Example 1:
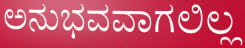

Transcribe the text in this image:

ಅನುಭವವಾಗಲಿಲ್ಲ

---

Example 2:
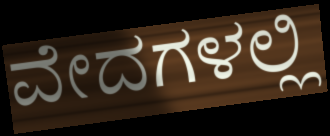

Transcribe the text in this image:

ವೇದಗಳಲ್ಲಿ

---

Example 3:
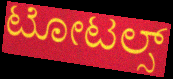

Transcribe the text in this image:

ಟೋಟಲ್ಸ್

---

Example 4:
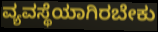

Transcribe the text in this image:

ವ್ಯವಸ್ಥೆಯಾಗಿರಬೇಕು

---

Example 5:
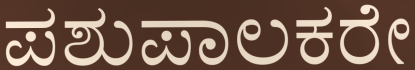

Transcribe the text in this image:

ಪಶುಪಾಲಕರೇ